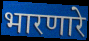
भारणारे